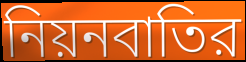
নিয়নবাতির